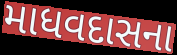
માધવદાસના